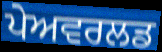
ਪੇਅਵਰਲਡ